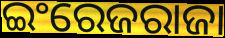
ଇଂରେଜରାଜା